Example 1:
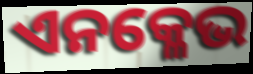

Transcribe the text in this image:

ଏନକ୍ଳେଭ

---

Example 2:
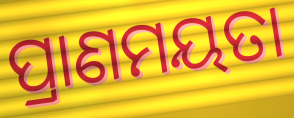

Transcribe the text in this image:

ପ୍ରାଣମୟତା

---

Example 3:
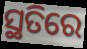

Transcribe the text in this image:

ସ୍ଥତିରେ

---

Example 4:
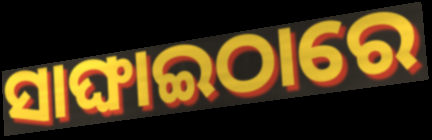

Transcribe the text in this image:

ସାଙ୍ଘାଇଠାରେ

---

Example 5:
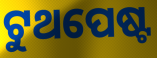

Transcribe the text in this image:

ଟୁଥପେଷ୍ଟ